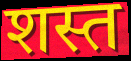
शस्त